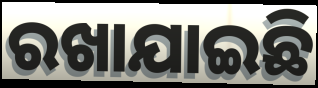
ରଖାଯାଇଛି